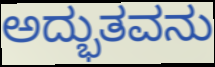
ಅದ್ಭುತವನು